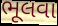
ભૂલવા